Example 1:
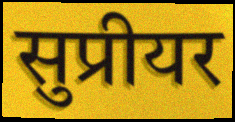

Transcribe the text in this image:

सुप्रीयर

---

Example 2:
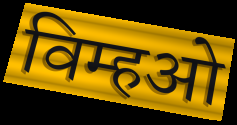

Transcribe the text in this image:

विम्हओ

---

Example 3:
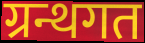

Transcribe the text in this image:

ग्रन्थगत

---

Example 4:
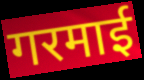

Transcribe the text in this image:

गरमाई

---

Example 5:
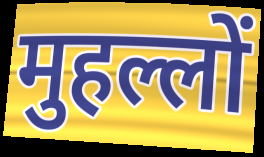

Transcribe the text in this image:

मुहल्लों